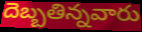
దెబ్బతిన్నవారు